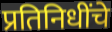
प्रतिनिधींचे